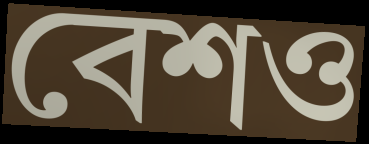
বেশও